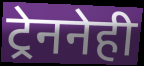
ट्रेननेही